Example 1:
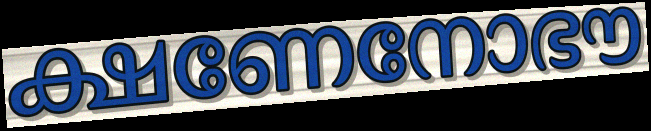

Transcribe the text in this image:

ക്ഷണേനോഭൗ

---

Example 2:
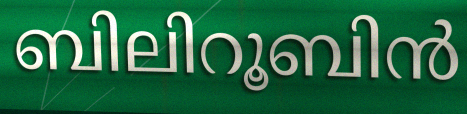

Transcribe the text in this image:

ബിലിറൂബിൻ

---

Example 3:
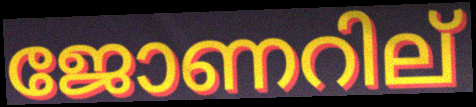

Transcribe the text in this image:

ജോണറില്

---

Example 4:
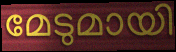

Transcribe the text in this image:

മേടുമായി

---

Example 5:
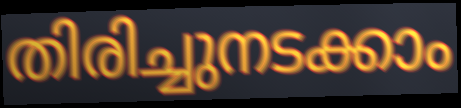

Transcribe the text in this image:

തിരിച്ചുനടക്കാം